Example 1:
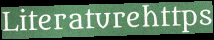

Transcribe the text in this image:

Literaturehttps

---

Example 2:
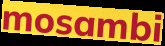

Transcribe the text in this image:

mosambi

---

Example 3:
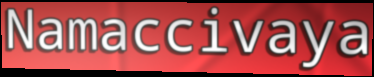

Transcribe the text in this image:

Namaccivaya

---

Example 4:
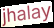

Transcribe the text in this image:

jhalay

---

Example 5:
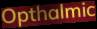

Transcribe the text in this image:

Opthalmic